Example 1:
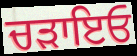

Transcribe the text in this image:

ਚੜਾਇਓ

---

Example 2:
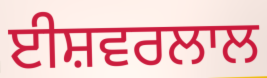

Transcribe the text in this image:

ਈਸ਼ਵਰਲਾਲ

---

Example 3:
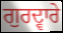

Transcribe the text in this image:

ਗੁਰਦ੍ਵਾਰੇ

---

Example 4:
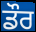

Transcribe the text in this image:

ਡੌਰ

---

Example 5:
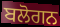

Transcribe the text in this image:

ਬਲੋਗਨ